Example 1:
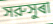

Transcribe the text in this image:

সৰুসুৰা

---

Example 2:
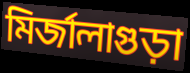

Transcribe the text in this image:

মিৰ্জালাগুড়া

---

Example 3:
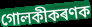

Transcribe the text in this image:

গোলকীকৰণক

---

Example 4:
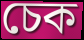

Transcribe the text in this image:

চেক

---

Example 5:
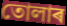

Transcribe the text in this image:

তোলাৰ